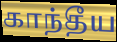
காந்தீய